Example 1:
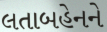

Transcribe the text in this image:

લતાબહેનને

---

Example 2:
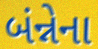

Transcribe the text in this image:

બંન્નેના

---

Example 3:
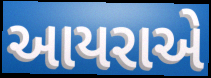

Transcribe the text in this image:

આયરાએ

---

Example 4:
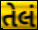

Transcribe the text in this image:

તેલં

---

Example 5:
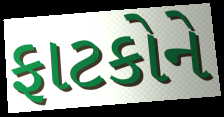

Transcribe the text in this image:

ફાટકોને